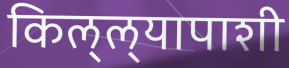
किल्ल्यापाशी